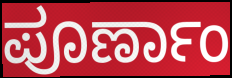
ಪೂರ್ಣಾಂ